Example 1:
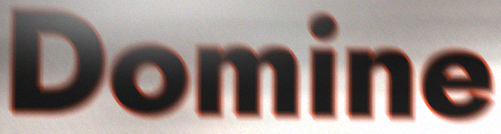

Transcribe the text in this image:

Domine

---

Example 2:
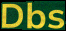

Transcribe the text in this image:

Dbs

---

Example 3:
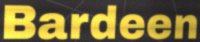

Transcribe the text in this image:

Bardeen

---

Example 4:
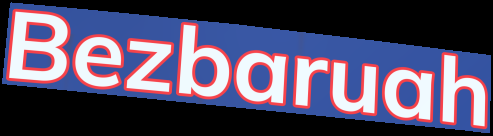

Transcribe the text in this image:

Bezbaruah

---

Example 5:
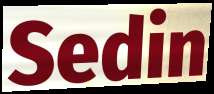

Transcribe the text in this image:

Sedin